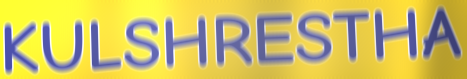
KULSHRESTHA